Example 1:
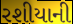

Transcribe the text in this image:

રશીયાની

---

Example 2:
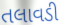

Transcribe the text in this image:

તલાવડી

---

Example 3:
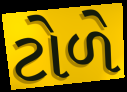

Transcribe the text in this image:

ટોળે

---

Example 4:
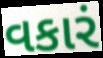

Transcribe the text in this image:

વકારં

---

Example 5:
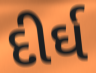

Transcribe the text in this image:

દીર્ઘ